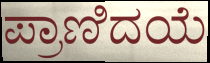
ಪ್ರಾಣಿದಯೆ